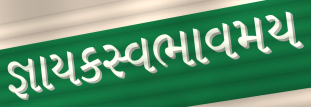
જ્ઞાયકસ્વભાવમય